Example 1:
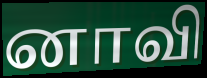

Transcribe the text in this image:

னாவி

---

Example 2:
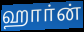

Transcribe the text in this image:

ஹார்ன்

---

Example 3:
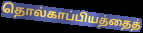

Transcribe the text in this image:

தொல்காப்பியத்தைத்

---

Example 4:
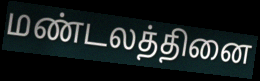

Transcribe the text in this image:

மண்டலத்தினை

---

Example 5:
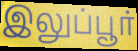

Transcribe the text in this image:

இலுப்பூர்